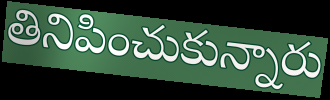
తినిపించుకున్నారు